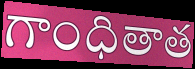
గాంధితాత